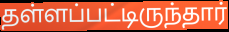
தள்ளப்பட்டிருந்தார்